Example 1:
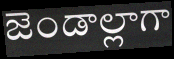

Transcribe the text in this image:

జెండాల్లాగా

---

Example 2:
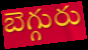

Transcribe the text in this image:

బెగ్గురు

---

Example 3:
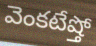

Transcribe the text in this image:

వెంకటేష్తో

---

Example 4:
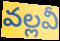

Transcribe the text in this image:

వల్లవీ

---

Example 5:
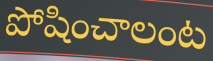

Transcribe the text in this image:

పోషించాలంట